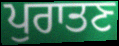
ਪੁਰਾਤਣ